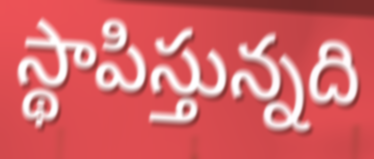
స్థాపిస్తున్నది